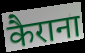
कैराना